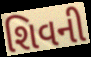
શિવની